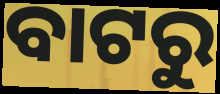
ବାଟରୁ